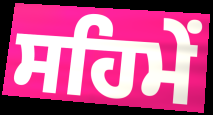
ਸਹਿਮੇਂ